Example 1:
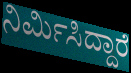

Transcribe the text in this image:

ನಿರ್ಮಿಸಿದ್ದಾರೆ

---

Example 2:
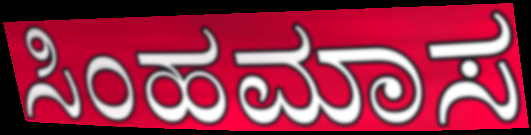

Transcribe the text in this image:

ಸಿಂಹಮಾಸ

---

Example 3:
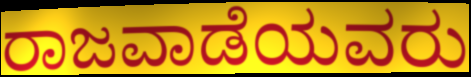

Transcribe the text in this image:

ರಾಜವಾಡೆಯವರು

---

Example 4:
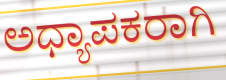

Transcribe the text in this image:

ಅಧ್ಯಾಪಕರಾಗಿ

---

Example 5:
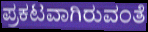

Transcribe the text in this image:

ಪ್ರಕಟವಾಗಿರುವಂತೆ